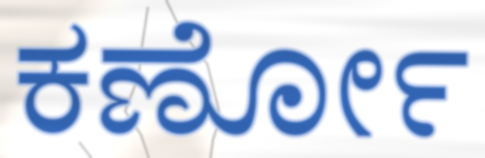
ಕರ್ಣೋ